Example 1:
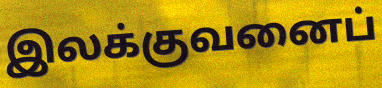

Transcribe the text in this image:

இலக்குவனைப்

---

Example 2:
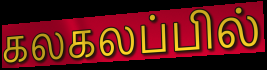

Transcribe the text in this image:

கலகலப்பில்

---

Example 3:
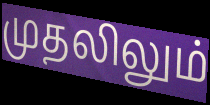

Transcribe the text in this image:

முதலிலும்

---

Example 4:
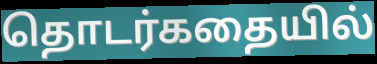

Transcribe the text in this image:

தொடர்கதையில்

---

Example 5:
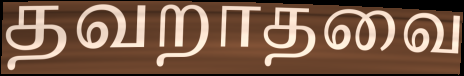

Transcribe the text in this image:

தவறாதவை